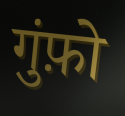
गुंफ़ो